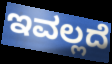
ಇವಲ್ಲದೆ